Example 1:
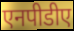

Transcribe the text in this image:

एनपीडीए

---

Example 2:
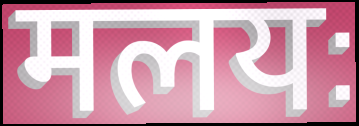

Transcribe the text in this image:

मलयः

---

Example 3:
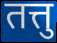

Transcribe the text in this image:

तत्तु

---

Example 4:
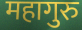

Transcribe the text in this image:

महागुरु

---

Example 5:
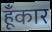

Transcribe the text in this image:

हूँकार